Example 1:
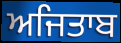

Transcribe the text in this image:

ਅਜਿਤਾਬ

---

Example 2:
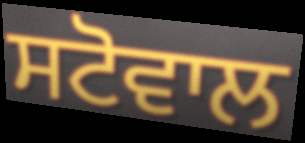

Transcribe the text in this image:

ਸਟੋਵਾਲ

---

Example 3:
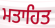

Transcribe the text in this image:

ਮਤਾਹਿਤ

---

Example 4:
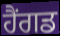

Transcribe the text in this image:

ਹੈਂਗਡ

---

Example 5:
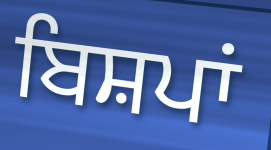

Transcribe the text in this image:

ਬਿਸ਼ਪਾਂ